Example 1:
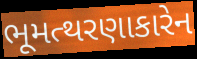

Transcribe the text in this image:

ભૂમત્થરણાકારેન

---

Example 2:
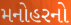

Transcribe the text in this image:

મનોહરનો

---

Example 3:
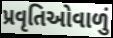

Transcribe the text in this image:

પ્રવૃતિઓવાળું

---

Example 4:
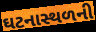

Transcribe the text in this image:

ઘટનાસ્થળની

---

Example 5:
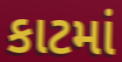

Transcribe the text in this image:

કાટમાં